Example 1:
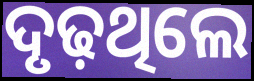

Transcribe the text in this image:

ଦୃଢ଼ଥିଲେ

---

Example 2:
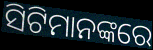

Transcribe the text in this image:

ସିଟିମାନଙ୍କରେ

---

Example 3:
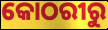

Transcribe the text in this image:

କୋଠରୀରୁ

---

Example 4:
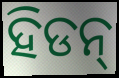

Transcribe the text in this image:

ହିଡନ୍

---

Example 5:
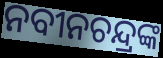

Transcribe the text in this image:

ନବୀନଚନ୍ଦ୍ରଙ୍କ